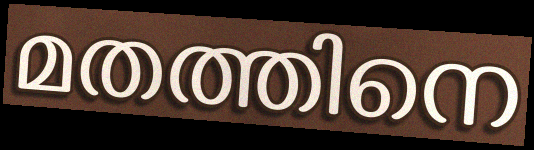
മതത്തിനെ